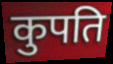
कुपति